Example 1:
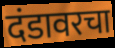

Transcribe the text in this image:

दंडावरचा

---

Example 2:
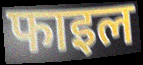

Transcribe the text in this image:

फाइल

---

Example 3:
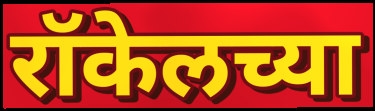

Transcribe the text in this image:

रॉकेलच्या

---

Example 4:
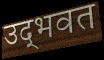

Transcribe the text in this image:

उद्‌भवत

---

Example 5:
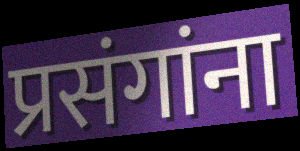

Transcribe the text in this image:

प्रसंगांना